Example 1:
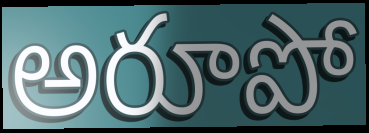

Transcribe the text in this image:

అరూపో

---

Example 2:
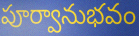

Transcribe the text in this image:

పూర్వానుభవం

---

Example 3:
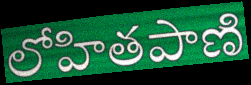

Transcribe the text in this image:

లోహితపాణి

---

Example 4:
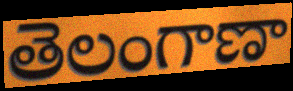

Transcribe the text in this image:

తెలంగాణా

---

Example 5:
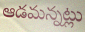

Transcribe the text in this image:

ఆడమన్నట్లు